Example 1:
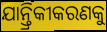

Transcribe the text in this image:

ଯାନ୍ତ୍ରିକୀକରଣକୁ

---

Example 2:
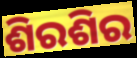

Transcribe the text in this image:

ଶିରଶିର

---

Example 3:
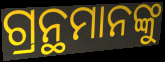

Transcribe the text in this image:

ଗ୍ରନ୍ଥମାନଙ୍କୁ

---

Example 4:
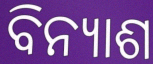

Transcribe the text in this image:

ବିନ୍ୟାଶ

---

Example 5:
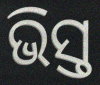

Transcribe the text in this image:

ଭିସ୍ତ